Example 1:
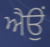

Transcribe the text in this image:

ਐਉਂ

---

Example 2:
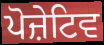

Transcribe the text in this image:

ਪੋਜ਼ੇਟਿਵ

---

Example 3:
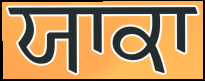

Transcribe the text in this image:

ਯਾਕਾ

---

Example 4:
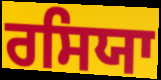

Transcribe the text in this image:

ਰਸਿਯਾ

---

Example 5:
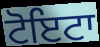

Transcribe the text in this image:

ਟੋਇਟਾ